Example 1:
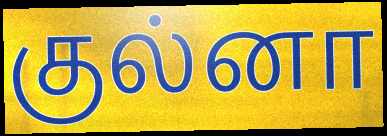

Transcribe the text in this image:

குல்னா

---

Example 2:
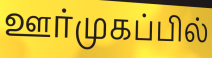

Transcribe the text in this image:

ஊர்முகப்பில்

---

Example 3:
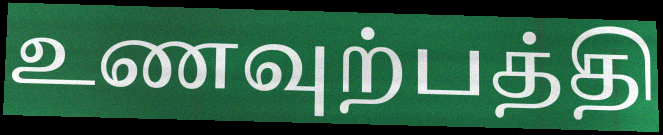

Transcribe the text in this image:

உணவுற்பத்தி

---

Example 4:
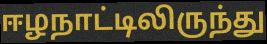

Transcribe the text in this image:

ஈழநாட்டிலிருந்து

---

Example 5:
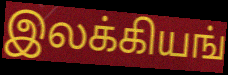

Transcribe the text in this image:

இலக்கியங்